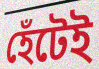
হেঁটেই